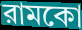
রামকো